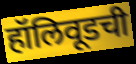
हॉलिवूडची